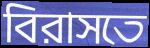
বিরাসতে